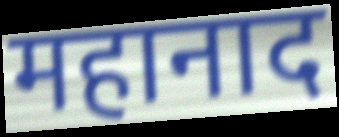
महानाद